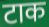
टाक